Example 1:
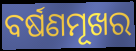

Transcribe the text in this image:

ବର୍ଷଣମୂଖର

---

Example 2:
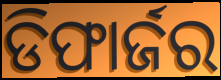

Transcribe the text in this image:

ଡିଫାର୍ଜର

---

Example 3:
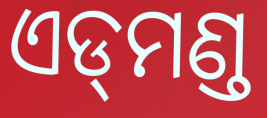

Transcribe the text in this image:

ଏଡ୍‌ମଣ୍ଡ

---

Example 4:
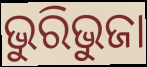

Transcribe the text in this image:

ଭୁରିଭୁଜା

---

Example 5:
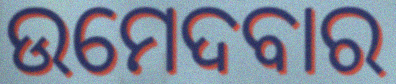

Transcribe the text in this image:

ଉମେଦବାର